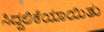
ಸಿದ್ದಲಿಕೆಯಾಯಿತು